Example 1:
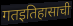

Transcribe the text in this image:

गतइतिहासाची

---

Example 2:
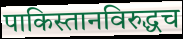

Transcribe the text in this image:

पाकिस्तानविरुद्धच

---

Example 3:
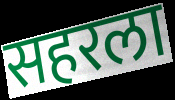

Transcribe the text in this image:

सहरला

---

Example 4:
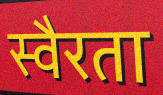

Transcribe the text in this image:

स्वैरता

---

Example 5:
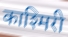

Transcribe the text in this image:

काश्मिरी